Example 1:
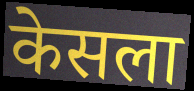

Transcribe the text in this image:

केसला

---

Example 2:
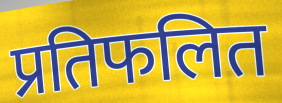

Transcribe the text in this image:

प्रतिफलित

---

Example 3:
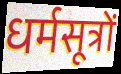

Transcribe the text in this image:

धर्मसूत्रों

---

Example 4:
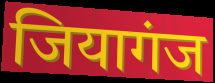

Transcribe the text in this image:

जियागंज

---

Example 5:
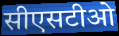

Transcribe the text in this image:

सीएसटीओ